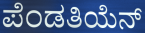
ಪೆಂಡತಿಯೆನ್